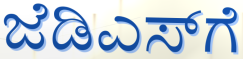
ಜೆಡಿಎಸ್‌ಗೆ